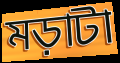
মড়াটা